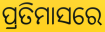
ପ୍ରତିମାସରେ